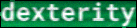
dexterity